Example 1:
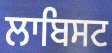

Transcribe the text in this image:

ਲਾਬਿਸਟ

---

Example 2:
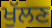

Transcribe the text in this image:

ਖੁੱਲਣ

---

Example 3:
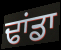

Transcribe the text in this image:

ਢਾਂਡਾ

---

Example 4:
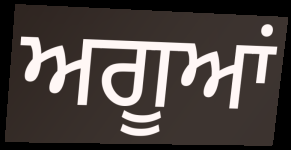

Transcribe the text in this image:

ਅਗੂਆਂ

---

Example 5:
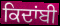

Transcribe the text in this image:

ਕਿਦਾਂਬੀ